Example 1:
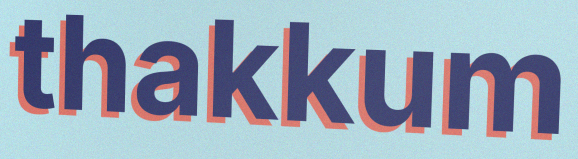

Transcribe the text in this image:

thakkum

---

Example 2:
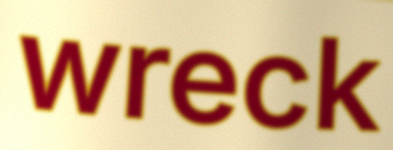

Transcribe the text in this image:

wreck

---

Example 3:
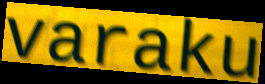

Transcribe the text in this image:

varaku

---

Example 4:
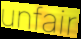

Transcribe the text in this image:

unfair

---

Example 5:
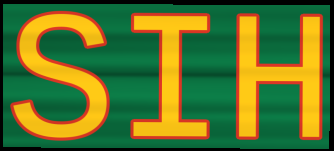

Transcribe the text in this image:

SIH